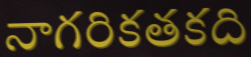
నాగరికతకది